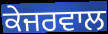
ਕੇਜਰਵਾਲ